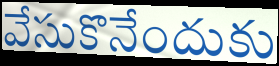
వేసుకొనేందుకు